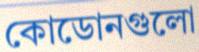
কোডোনগুলো